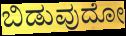
ಬಿಡುವುದೋ